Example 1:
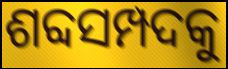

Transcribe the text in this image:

ଶବ୍ଦସମ୍ପଦକୁ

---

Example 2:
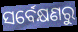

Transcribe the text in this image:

ସର୍ବେକ୍ଷଣରୁ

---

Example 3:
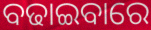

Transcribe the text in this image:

ବଢାଇବାରେ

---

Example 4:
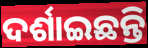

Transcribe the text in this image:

ଦର୍ଶାଇଛନ୍ତି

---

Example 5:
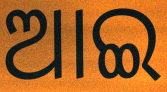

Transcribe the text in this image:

ଆଇ